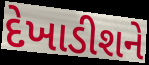
દેખાડીશને